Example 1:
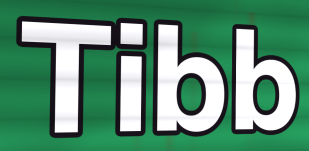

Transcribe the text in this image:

Tibb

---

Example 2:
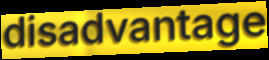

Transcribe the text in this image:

disadvantage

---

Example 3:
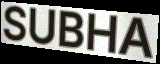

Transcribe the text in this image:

SUBHA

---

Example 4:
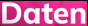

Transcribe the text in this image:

Daten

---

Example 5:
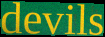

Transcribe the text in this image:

devils